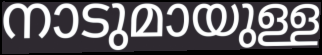
നാടുമായുള്ള